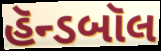
હૅન્ડબૉલ